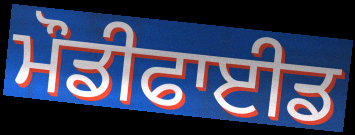
ਮੌਡੀਫਾਈਡ